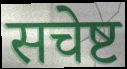
सचेष्ट